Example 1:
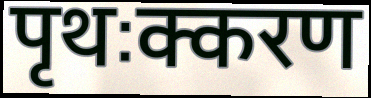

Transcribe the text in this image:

पृथःक्करण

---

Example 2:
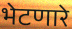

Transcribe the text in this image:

भेटणारे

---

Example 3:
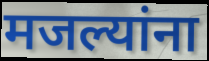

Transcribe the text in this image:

मजल्यांना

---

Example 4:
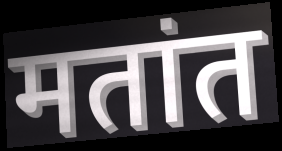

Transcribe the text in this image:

मतांत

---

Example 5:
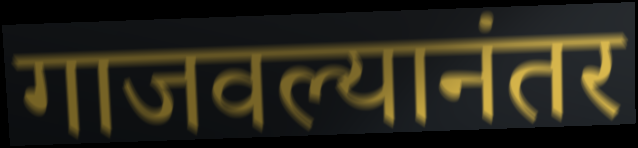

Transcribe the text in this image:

गाजवल्यानंतर